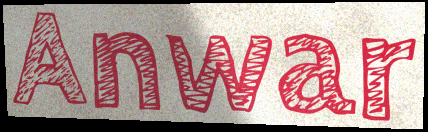
Anwar